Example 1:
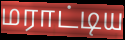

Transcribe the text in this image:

மராட்டிய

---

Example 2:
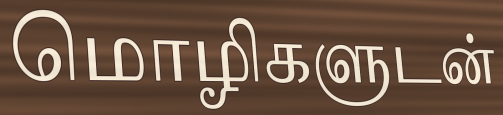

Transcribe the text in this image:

மொழிகளுடன்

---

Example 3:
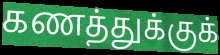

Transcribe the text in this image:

கணத்துக்குக்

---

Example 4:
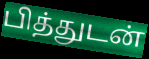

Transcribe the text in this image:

பித்துடன்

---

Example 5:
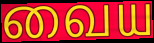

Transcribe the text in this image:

வைய